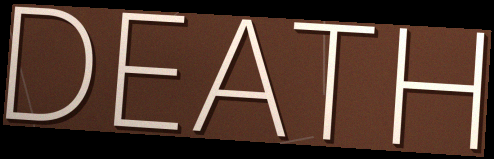
DEATH